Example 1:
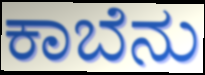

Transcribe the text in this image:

ಕಾಬೆನು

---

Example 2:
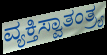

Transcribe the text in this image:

ವ್ಯಕ್ತಿಸ್ವಾತಂತ್ರ್ಯ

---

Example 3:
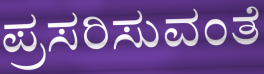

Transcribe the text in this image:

ಪ್ರಸರಿಸುವಂತೆ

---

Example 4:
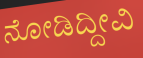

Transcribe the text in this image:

ನೋಡಿದ್ದೀವಿ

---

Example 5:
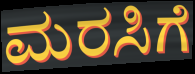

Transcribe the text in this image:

ಮರಸಿಗೆ